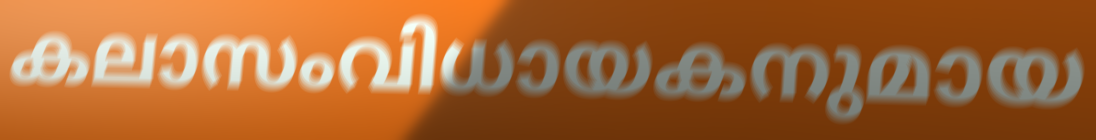
കലാസംവിധായകനുമായ